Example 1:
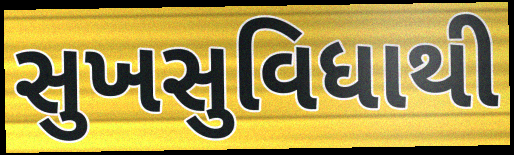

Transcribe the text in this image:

સુખસુવિધાથી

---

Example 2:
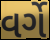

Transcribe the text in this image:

વર્ગે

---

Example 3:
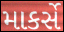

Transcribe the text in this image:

માકર્સે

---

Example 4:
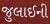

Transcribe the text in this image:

જુલાઈની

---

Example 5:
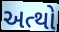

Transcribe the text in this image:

અત્થો